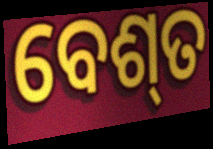
ବେଶ୍‍ତ